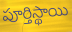
పూర్తిస్థాయి